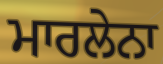
ਮਾਰਲੇਨਾ